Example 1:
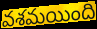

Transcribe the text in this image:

వశమయింది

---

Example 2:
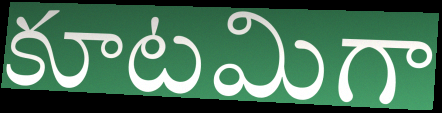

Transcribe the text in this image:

కూటమిగా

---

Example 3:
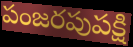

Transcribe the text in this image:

పంజరపుపక్షి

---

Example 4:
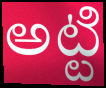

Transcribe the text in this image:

అట్టి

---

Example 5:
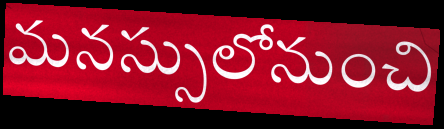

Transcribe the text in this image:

మనస్సులోనుంచి